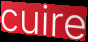
cuire